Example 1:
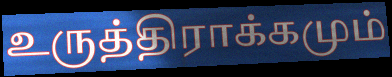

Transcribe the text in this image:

உருத்திராக்கமும்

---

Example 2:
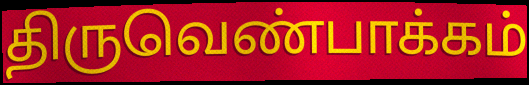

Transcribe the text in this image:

திருவெண்பாக்கம்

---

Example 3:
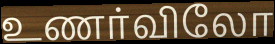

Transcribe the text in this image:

உணர்விலோ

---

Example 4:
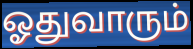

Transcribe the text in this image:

ஓதுவாரும்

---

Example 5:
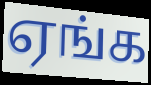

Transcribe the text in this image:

ஏங்க